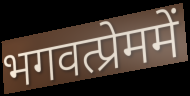
भगवत्प्रेममें